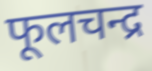
फूलचन्द्र